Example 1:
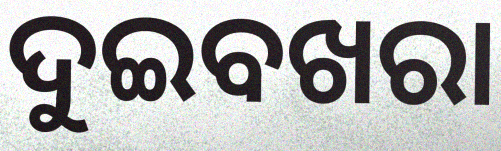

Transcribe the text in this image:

ଦୁଇବଖରା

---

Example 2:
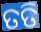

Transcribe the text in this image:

ତତି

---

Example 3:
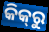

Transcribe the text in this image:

କିକ୍‍ରୁ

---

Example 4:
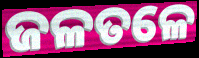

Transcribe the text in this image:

ଜଳତଳେ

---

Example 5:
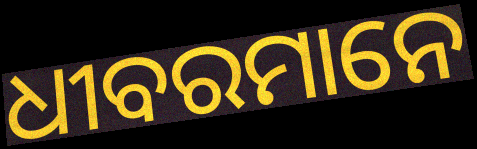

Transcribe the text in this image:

ଧୀବରମାନେ